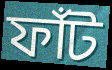
ফাঁট